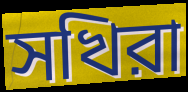
সখিরা